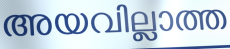
അയവില്ലാത്ത